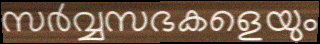
സർവ്വസഭകളെയും